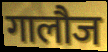
गालौज